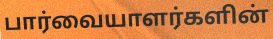
பார்வையாளர்களின்